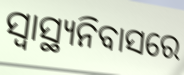
ସ୍ଵାସ୍ଥ୍ୟନିବାସରେ